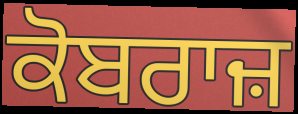
ਕੋਬਰਾਜ਼